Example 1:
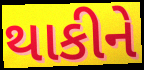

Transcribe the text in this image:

થાકીને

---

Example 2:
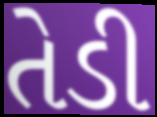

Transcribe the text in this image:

તેડી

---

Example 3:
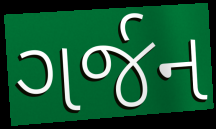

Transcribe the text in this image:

ગર્જન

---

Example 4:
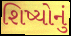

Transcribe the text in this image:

શિષ્યોનું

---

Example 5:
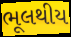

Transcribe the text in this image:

ભૂલથીય